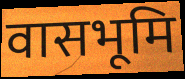
वासभूमि